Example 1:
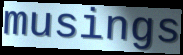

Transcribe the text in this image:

musings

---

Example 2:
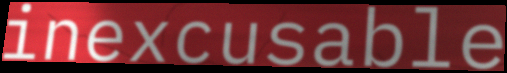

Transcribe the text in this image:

inexcusable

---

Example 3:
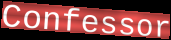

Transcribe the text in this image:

Confessor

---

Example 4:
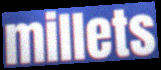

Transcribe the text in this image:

millets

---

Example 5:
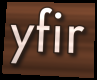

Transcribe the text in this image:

yfir